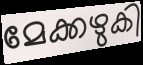
മേക്കഴുകി